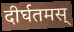
दीर्घतमस्